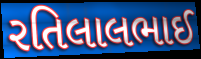
રતિલાલભાઈ